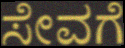
ಸೇವಗೆ